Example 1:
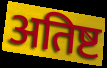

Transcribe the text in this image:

अतिष्ट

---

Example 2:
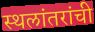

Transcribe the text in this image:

स्थलांतरांची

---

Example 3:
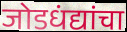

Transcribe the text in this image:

जोडधंद्यांचा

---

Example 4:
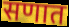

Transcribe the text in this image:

सणात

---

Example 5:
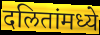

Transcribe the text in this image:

दलितांमध्ये